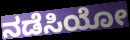
ನಡೆಸಿಯೋ